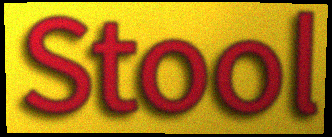
Stool